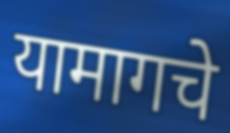
यामागचे